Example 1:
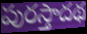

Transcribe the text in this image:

పురస్తాదథ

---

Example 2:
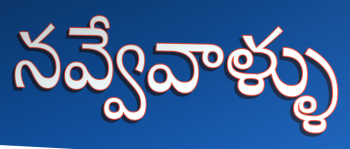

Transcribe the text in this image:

నవ్వేవాళ్ళు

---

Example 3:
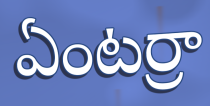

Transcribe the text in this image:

ఏంటర్రా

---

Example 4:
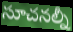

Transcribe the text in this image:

సూచనల్నీ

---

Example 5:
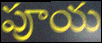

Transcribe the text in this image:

పూయ